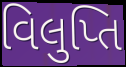
વિલુપ્તિ